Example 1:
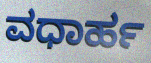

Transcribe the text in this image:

ವಧಾರ್ಹ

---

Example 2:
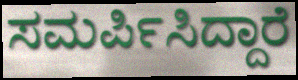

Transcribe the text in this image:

ಸಮರ್ಪಿಸಿದ್ದಾರೆ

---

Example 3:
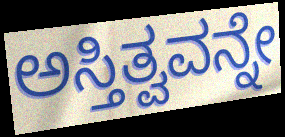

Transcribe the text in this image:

ಅಸ್ತಿತ್ವವನ್ನೇ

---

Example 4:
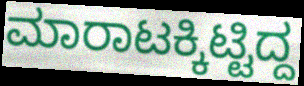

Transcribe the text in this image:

ಮಾರಾಟಕ್ಕಿಟ್ಟಿದ್ದ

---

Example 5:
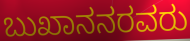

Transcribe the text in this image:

ಬುಖಾನನರವರು